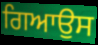
ਗਿਆਉਸ